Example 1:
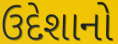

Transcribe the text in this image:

ઉદેશાનો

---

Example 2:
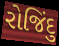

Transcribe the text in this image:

રોજિંદુ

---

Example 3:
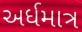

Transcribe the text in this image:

અર્ધમાત્ર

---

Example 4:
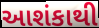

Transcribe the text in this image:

આશંકાથી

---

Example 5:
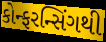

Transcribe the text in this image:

કોન્ફરન્સિંગથી